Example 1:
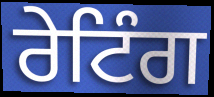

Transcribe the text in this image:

ਰੇਟਿੰਗ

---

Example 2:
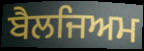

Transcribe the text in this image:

ਬੈਲਜਿਅਮ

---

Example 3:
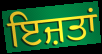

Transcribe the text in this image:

ਇਜ਼ਤਾਂ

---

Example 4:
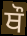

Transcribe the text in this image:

ਥੌ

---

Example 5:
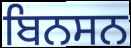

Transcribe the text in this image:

ਬਿਨਸਨ